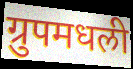
ग्रुपमधली